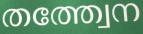
തത്ത്വേന